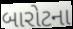
બારોટના